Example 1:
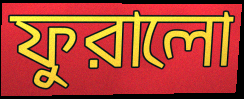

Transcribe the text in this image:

ফুরালো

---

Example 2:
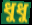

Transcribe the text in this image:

ধুধু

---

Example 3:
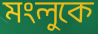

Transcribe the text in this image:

মংলুকে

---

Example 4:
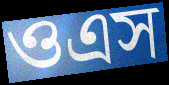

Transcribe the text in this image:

ওএস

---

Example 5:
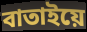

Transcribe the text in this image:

বাতাইয়ে